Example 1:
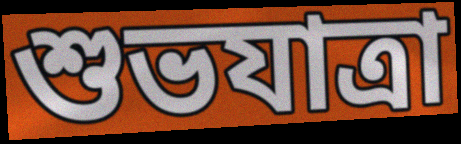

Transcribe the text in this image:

শুভযাত্রা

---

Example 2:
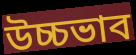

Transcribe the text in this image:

উচ্চভাব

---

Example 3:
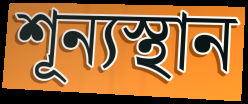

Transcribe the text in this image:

শূন্যস্থান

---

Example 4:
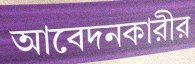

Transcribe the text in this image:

আবেদনকারীর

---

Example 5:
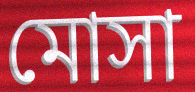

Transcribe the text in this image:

মোসা